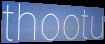
thootu